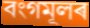
বংগমূলৰ